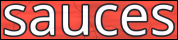
sauces